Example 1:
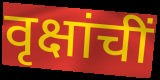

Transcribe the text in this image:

वृक्षांचीं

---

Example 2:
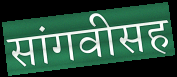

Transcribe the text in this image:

सांगवीसह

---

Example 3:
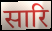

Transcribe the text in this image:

सारि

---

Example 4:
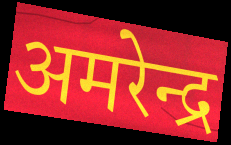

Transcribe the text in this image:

अमरेन्द्र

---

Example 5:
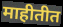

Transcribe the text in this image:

माहीतीत